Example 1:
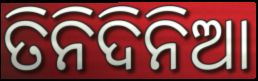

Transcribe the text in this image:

ତିନିଦିନିଆ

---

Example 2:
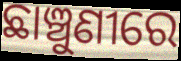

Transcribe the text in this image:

ଛାଞ୍ଚୁଣୀରେ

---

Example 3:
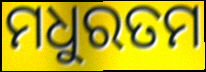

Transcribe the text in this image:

ମଧୁରତମ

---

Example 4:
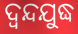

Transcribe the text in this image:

ଦ୍ୱନ୍ଦଯୁଦ୍ଧ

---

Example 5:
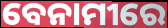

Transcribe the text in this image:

ବେନାମୀରେ